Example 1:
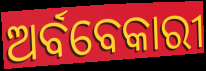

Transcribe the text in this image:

ଅର୍ବବେକାରୀ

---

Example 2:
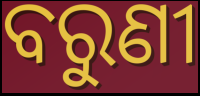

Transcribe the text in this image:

ବରୁଣୀ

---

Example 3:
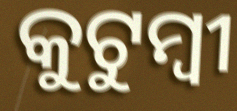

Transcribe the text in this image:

କୁଟୁମ୍ୱୀ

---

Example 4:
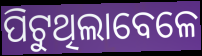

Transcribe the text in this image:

ପିଟୁଥିଲାବେଳେ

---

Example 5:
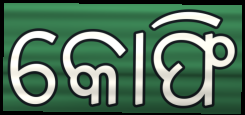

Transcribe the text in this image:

କୋଫି